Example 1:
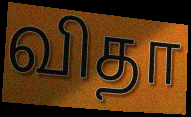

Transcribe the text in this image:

விதா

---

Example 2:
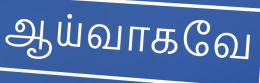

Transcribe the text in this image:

ஆய்வாகவே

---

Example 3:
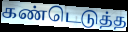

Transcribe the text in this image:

கண்டெடுத்த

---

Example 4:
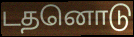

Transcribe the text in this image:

டதனொடு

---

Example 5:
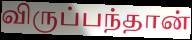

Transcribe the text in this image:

விருப்பந்தான்